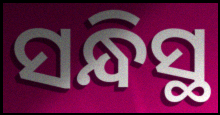
ସନ୍ଧିସ୍ଥ